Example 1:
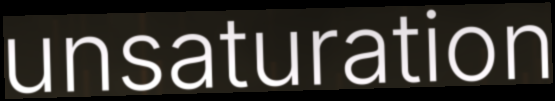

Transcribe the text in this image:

unsaturation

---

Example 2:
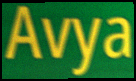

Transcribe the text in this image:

Avya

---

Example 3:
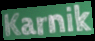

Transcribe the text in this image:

Karnik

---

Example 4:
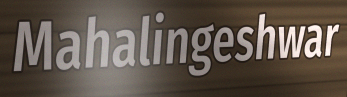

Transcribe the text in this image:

Mahalingeshwar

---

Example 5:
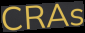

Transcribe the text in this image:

CRAs